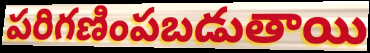
పరిగణింపబడుతాయి